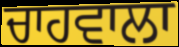
ਚਾਹਵਾਲਾ